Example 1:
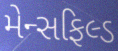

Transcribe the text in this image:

મેન્સફિલ્ડ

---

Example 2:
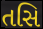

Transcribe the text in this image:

તસિ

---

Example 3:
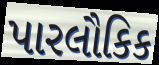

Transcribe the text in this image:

પારલૌકિક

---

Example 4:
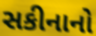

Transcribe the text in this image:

સકીનાનો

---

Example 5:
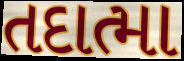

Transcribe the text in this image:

તદાત્મા